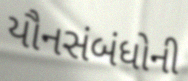
યૌનસંબંધોની